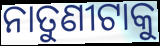
ନାତୁଣୀଟାକୁ